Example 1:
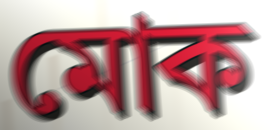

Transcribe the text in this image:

মোক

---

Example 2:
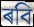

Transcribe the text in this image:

ৰবি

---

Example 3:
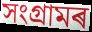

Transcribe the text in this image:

সংগ্ৰামৰ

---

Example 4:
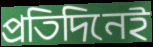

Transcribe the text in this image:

প্ৰতিদিনেই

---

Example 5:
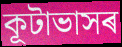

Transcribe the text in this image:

কূটাভাসৰ